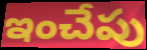
ఇంచేపు